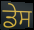
ਡੇਸ